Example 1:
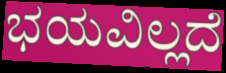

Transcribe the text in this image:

ಭಯವಿಲ್ಲದೆ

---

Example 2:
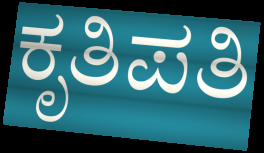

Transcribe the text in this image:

ಕೃತಿಪತಿ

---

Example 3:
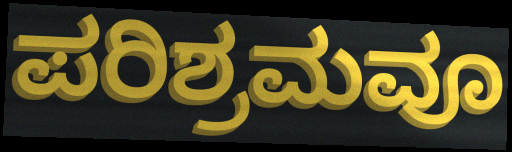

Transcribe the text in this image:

ಪರಿಶ್ರಮವೂ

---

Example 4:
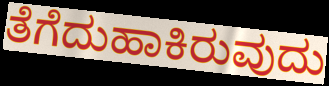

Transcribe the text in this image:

ತೆಗೆದುಹಾಕಿರುವುದು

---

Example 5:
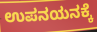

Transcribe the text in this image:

ಉಪನಯನಕ್ಕೆ